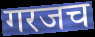
गरजच